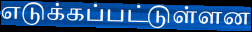
எடுக்கப்பட்டுள்ளன